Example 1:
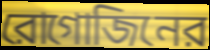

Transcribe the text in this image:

রোগোজিনের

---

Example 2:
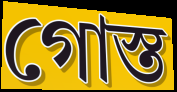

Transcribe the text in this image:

গোস্ত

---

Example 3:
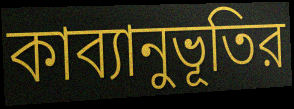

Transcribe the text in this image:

কাব্যানুভূতির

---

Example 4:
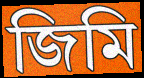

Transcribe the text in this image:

জিমি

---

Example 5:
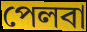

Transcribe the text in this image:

পেলবা